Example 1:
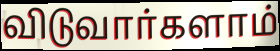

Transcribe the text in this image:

விடுவார்களாம்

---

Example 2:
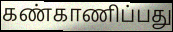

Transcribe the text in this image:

கண்காணிப்பது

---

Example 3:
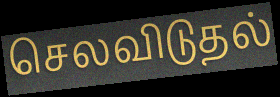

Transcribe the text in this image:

செலவிடுதல்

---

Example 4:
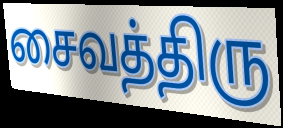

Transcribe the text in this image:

சைவத்திரு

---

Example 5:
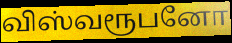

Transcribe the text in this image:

விஸ்வரூபனோ